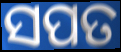
ସପତ